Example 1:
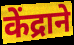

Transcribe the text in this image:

केंद्राने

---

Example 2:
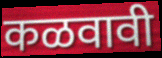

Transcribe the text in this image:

कळवावी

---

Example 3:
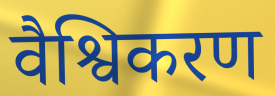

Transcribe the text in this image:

वैश्विकरण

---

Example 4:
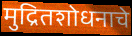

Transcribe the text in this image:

मुद्रितशोधनाचे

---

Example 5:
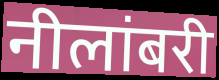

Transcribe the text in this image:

नीलांबरी